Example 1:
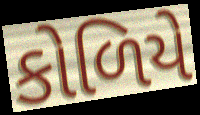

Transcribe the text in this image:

કોળિયે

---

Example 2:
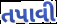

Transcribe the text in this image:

તપાવી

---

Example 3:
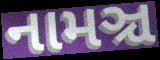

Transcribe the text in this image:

નામઞ્ચ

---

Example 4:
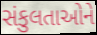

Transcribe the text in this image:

સંકુલતાઓને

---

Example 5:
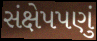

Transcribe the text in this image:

સંક્ષેપપણું